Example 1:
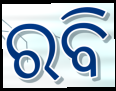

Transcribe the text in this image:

ରବି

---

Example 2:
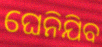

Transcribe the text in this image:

ଘେନିଯିବ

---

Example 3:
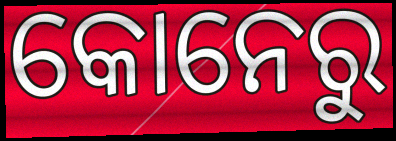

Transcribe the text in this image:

କୋନେରୁ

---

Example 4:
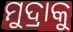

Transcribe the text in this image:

ମୁଦ୍ରାକୁ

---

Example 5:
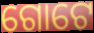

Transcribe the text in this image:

ଗୋଟେ